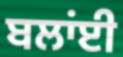
ਬਲਾਂਈ